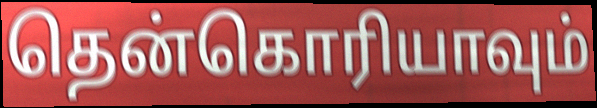
தென்கொரியாவும்